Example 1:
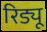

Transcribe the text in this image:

रिड्यू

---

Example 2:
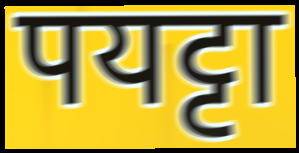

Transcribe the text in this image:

पयट्टा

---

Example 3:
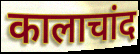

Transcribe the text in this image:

कालाचांद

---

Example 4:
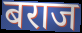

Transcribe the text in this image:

बराज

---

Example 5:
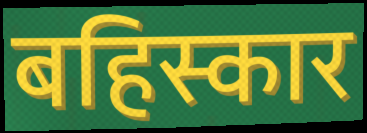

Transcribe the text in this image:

बहिस्कार